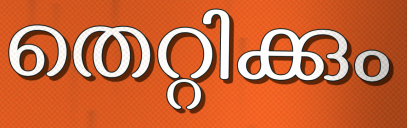
തെറ്റിക്കും